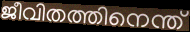
ജീവിതത്തിനെന്ത്